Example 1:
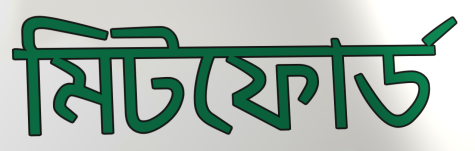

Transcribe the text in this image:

মিটফোর্ড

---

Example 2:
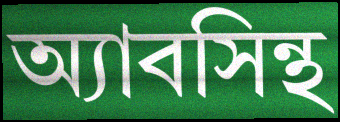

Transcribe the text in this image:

অ্যাবসিন্থ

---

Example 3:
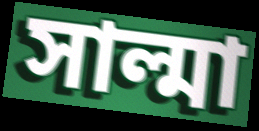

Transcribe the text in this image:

সাল্মা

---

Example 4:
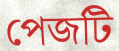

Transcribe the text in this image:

পেজটি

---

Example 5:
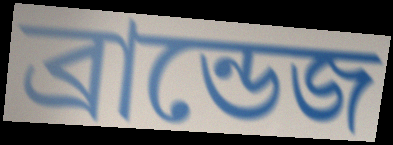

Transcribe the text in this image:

ব্রান্ডেজ